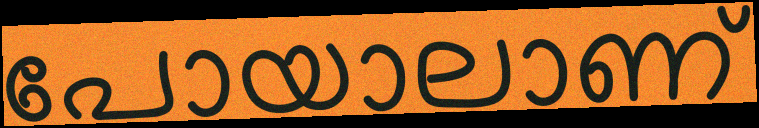
പോയാലാണ്